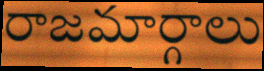
రాజమార్గాలు